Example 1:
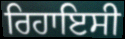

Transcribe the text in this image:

ਰਿਹਾਇਸੀ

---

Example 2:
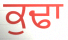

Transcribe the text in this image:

ਕੁਢਾ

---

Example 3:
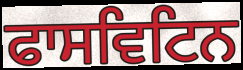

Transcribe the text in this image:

ਫਾਸਵਿਟਿਨ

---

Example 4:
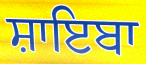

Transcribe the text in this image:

ਸ਼ਾਇਬਾ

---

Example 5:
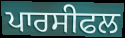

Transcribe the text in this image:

ਪਾਰਸੀਫਲ